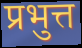
प्रभुत्त